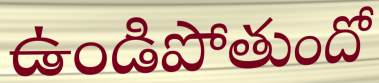
ఉండిపోతుందో